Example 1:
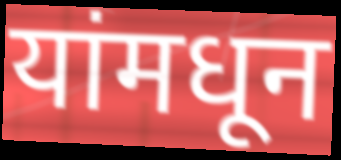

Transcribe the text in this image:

यांमधून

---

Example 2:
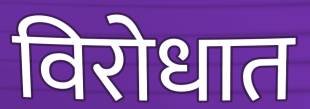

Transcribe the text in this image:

विरोधात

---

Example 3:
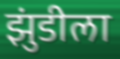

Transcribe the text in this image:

झुंडीला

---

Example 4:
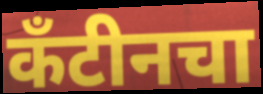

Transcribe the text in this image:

कँटीनचा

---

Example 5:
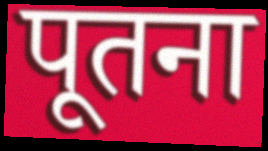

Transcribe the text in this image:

पूतना